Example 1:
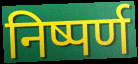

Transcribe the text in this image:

निष्पर्ण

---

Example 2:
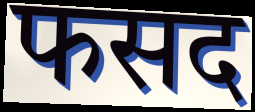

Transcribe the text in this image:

फसद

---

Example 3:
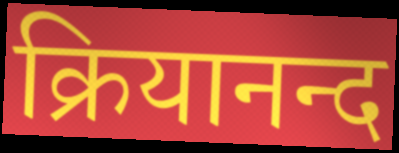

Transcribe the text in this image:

क्रियानन्द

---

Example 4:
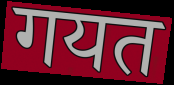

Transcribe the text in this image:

गयत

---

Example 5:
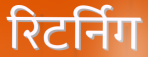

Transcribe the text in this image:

रिटर्निग